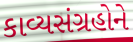
કાવ્યસંગ્રહોને